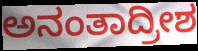
ಅನಂತಾದ್ರೀಶ